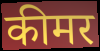
कीमर